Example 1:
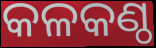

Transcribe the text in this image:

କଳକଣ୍ଠ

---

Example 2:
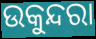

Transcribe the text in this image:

ଉକୁନ୍ଦରା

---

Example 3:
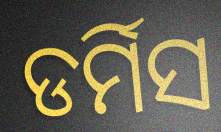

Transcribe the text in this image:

ଡର୍ମିସ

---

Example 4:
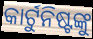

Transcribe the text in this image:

କାର୍ଟୁନିଷ୍ଟଙ୍କୁ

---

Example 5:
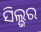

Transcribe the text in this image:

ସିଲ୍ଭର